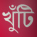
খুঁটি